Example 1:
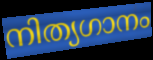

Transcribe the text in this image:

നിത്യഗാനം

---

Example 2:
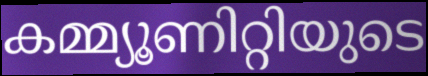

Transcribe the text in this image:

കമ്മ്യൂണിറ്റിയുടെ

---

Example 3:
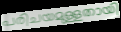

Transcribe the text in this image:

പരിചയമുള്ളതായി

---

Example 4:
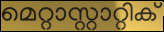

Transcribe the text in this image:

മെറ്റാസ്റ്റാറ്റിക്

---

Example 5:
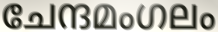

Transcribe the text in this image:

ചേന്ദമംഗലം